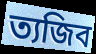
ত্যজিব